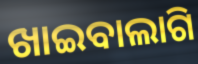
ଖାଇବାଲାଗି